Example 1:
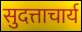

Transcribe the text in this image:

सुदत्ताचार्य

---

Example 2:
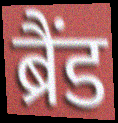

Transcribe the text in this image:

ब्रैंड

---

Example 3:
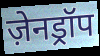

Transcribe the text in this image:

ज़ेनड्रॉप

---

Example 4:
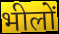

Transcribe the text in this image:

भीलों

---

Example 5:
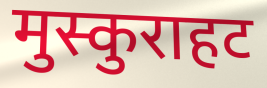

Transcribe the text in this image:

मुस्कुराहट